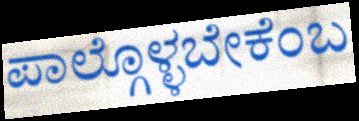
ಪಾಲ್ಗೊಳ್ಳಬೇಕೆಂಬ